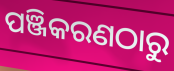
ପଞ୍ଜିକରଣଠାରୁ